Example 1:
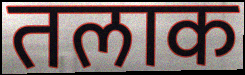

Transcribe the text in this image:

तलाक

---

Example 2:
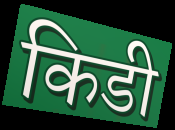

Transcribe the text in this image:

किडी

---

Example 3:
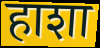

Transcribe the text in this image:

हाशा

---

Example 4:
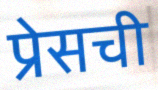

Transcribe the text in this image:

प्रेसची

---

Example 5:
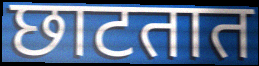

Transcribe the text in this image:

छाटतात